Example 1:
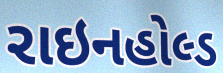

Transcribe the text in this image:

રાઇનહોલ્ડ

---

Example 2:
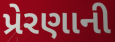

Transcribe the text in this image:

પ્રેરણાની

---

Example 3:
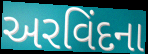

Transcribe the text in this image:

અરવિંદના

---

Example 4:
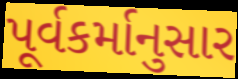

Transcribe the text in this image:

પૂર્વકર્માનુસાર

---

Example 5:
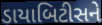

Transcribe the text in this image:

ડાયાબિટીસને